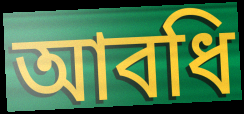
আবধি